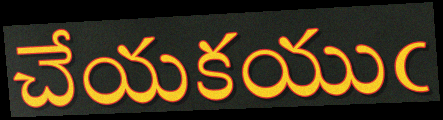
చేయకయుఁ